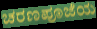
ಚರಣಪೂಜೆಯ